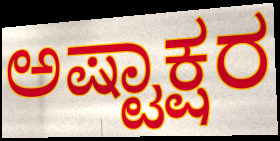
ಅಷ್ಟಾಕ್ಷರ